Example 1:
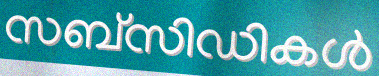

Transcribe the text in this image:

സബ്സിഡികൾ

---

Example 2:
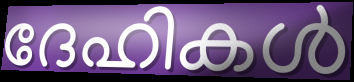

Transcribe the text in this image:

ദേഹികൾ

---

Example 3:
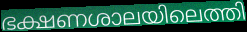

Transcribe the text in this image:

ഭക്ഷണശാലയിലെത്തി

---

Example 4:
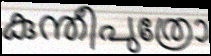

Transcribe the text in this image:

കുന്തീപുത്രോ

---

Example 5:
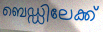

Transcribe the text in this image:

ബെഡ്ഡിലേക്ക്